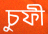
চুফী